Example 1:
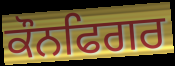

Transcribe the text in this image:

ਕੌਨਫਿਗਰ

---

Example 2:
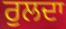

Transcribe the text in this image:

ਰੁਲਦਾ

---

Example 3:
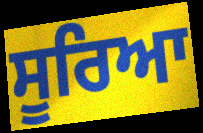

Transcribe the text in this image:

ਸੂਰਿਆ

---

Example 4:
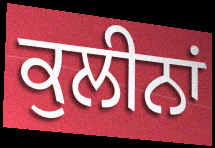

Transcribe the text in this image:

ਕੁਲੀਨਾਂ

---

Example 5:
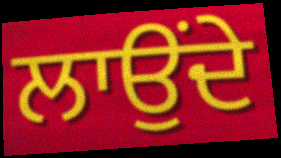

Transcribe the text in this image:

ਲਾਉਂਦੇ